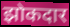
झोकदार